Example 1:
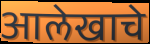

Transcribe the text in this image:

आलेखाचे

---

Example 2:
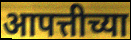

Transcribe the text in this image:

आपत्तीच्या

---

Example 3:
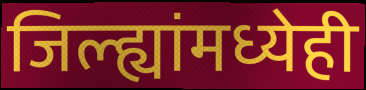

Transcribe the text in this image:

जिल्ह्यांमध्येही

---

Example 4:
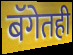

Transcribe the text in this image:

बॅगेतही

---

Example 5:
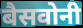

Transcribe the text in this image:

बैसवोनी